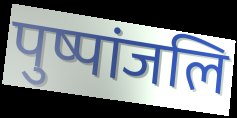
पुष्‍पांजलि